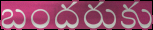
బందరుకు